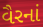
વૈરનાં